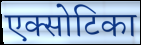
एक्सोटिका